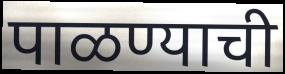
पाळण्याची